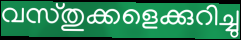
വസ്തുക്കളെക്കുറിച്ചു